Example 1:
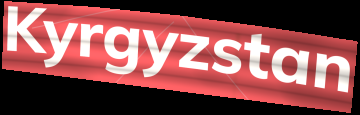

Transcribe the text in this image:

Kyrgyzstan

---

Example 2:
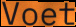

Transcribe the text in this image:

Voet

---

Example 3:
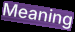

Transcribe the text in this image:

Meaning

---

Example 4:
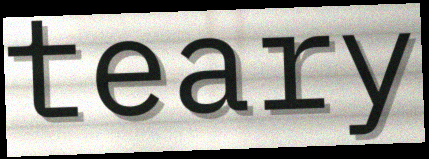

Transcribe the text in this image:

teary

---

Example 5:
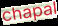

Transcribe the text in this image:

chapal